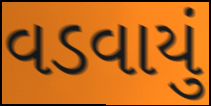
વડવાયું